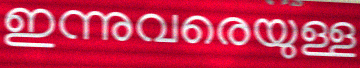
ഇന്നുവരെയുള്ള